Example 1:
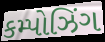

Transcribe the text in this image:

કમ્પોઝિંગ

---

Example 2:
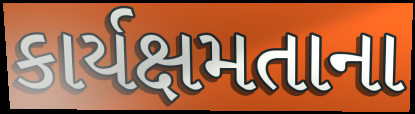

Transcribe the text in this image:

કાર્યક્ષમતાના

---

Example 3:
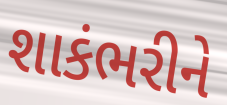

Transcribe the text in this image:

શાકંભરીને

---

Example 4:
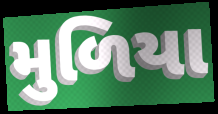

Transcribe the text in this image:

મુળિયા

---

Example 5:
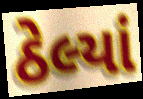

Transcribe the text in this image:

ઠેલ્યાં